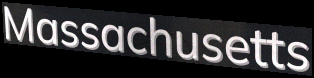
Massachusetts